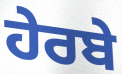
ਹੇਰਬੇ